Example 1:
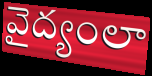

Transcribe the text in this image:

వైద్యంలా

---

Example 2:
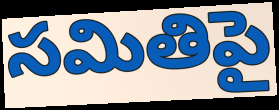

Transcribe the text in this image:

సమితిపై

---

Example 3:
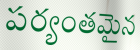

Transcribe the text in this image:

పర్యంతమైన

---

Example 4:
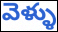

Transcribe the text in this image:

వెళ్ళు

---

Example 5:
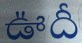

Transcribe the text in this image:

ఊదీ